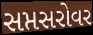
સપ્તસરોવર